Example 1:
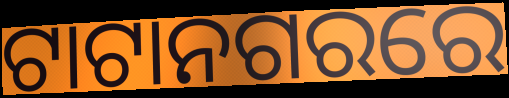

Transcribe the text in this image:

ଟାଟାନଗରରେ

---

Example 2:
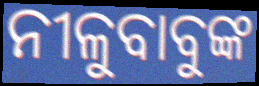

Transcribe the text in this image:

ନୀଳୁବାବୁଙ୍କ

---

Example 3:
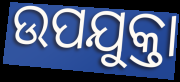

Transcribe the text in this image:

ଉପଯୁକ୍ତା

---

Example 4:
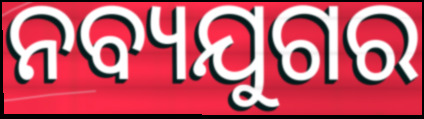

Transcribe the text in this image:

ନବ୍ୟଯୁଗର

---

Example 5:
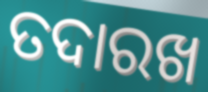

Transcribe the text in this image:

ତଦାରଖ